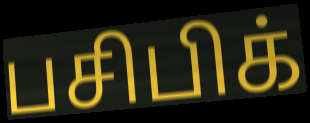
பசிபிக்